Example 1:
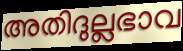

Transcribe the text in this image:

അതിദുല്ലഭാവ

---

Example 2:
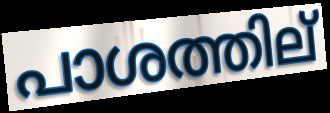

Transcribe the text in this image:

പാശത്തില്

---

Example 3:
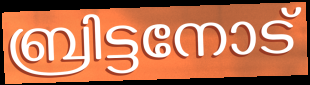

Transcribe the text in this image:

ബ്രിട്ടനോട്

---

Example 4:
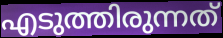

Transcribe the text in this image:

എടുത്തിരുന്നത്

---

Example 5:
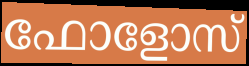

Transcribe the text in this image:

ഫോളോസ്